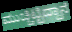
ಮುಚ್ಚಿಟ್ಟಿದ್ದಾನೆ